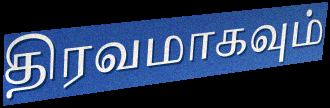
திரவமாகவும்